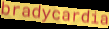
bradycardia